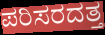
ಪರಿಸರದತ್ತ